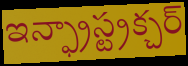
ఇన్ఫ్రాస్ట్రక్చర్